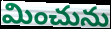
మించును